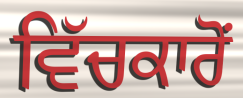
ਵਿੱਚਕਾਰੋਂ